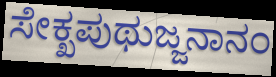
ಸೇಕ್ಖಪುಥುಜ್ಜನಾನಂ